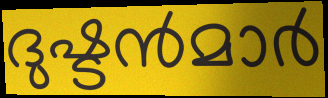
ദുഷ്ടൻമാർ